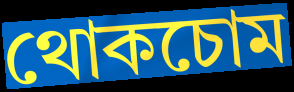
থোকচোম